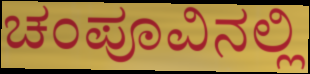
ಚಂಪೂವಿನಲ್ಲಿ